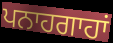
ਪਨਾਹਗਾਹਾਂ